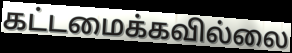
கட்டமைக்கவில்லை